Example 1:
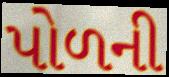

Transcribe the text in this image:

પોળની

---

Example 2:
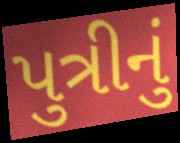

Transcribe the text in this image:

પુત્રીનું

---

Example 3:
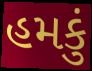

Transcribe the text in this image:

હમકું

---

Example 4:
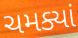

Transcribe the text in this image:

ચમક્યાં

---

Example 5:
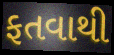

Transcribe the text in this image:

ફતવાથી